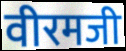
वीरमजी